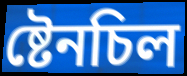
ষ্টেনচিল